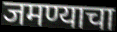
जमण्याचा